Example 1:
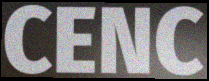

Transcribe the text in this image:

CENC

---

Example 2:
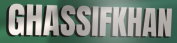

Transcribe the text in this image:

GHASSIFKHAN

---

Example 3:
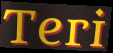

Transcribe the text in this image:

Teri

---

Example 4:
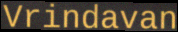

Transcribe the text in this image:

Vrindavan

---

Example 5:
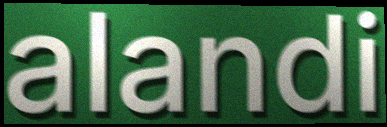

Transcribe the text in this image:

alandi